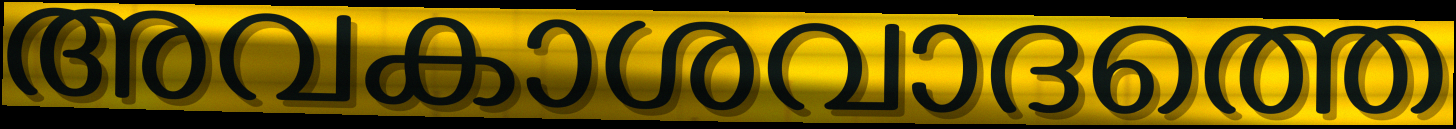
അവകാശവാദത്തെ